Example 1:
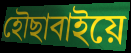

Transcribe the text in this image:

হৌছাবাইয়ে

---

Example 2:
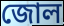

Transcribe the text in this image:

জোল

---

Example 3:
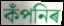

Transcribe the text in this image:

কঁপনিৰ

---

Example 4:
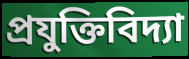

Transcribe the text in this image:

প্ৰযুক্তিবিদ্যা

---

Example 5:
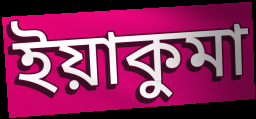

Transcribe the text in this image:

ইয়াকুমা